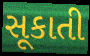
સૂકાતી